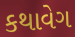
કથાવેગ